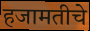
हजामतीचे